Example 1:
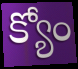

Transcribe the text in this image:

క్యోం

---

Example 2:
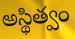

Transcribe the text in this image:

అస్థిత్వం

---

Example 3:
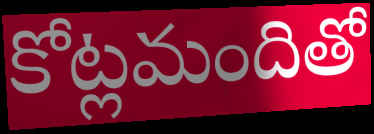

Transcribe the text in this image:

కోట్లమందితో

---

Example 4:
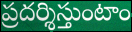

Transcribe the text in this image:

ప్రదర్శిస్తుంటాం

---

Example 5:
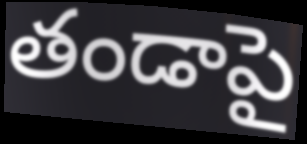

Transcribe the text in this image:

తండాపై